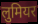
लुमियर